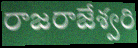
రాజరాజేశ్వరి